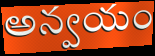
అన్వయం